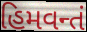
હિમવન્તં